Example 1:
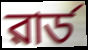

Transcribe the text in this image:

ৱাৰ্ড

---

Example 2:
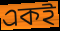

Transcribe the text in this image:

একই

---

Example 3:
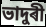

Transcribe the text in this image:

ভাদুৰী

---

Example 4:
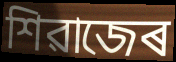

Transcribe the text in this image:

শিৱাজেৰ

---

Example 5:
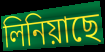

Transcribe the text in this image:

লিনিয়াছে